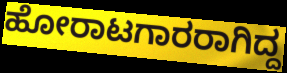
ಹೋರಾಟಗಾರರಾಗಿದ್ದ